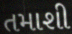
તમાશી